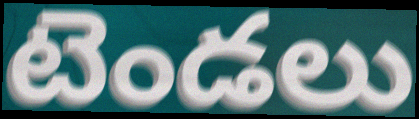
టెండలు